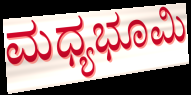
ಮಧ್ಯಭೂಮಿ